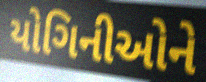
યોગિનીઓને